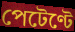
পেটেণ্টে